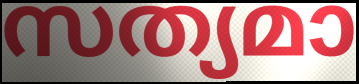
സത്യമാ